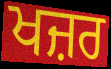
ਖਜ਼ਰ